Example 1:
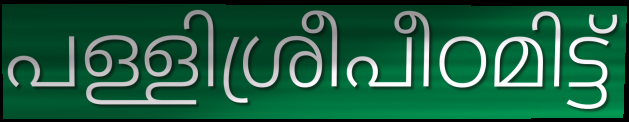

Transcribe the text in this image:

പള്ളിശ്രീപീഠമിട്ട്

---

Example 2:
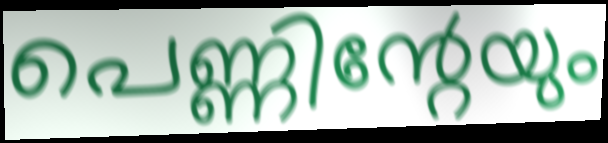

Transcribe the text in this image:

പെണ്ണിന്റേയും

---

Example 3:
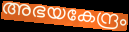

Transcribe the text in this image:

അഭയകേന്ദ്രം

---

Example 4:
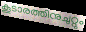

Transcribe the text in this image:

കൂടാരത്തിനുചുറ്റും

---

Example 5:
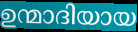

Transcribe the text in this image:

ഉന്മാദിയായ